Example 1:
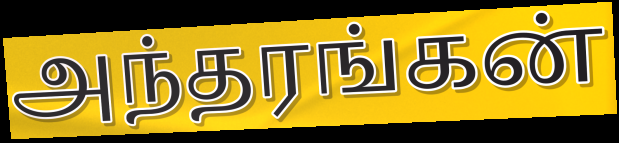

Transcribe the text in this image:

அந்தரங்கன்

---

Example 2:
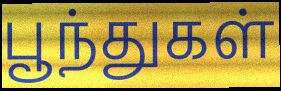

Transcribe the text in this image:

பூந்துகள்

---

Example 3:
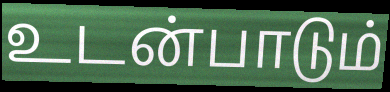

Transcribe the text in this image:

உடன்பாடும்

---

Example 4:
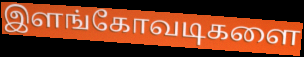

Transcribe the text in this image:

இளங்கோவடிகளை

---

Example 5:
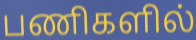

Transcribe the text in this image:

பணிகளில்